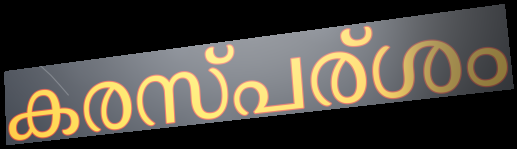
കരസ്പര്ശം